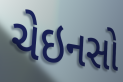
ચેઇનસો